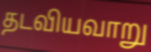
தடவியவாறு